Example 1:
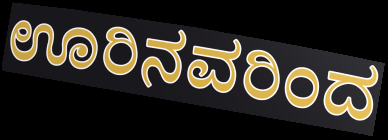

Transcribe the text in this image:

ಊರಿನವರಿಂದ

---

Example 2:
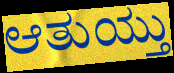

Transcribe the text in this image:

ಆತುಯ್ತು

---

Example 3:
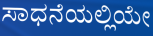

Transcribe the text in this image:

ಸಾಧನೆಯಲ್ಲಿಯೇ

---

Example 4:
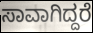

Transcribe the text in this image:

ಸಾವಾಗಿದ್ದರೆ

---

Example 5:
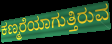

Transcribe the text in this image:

ಕಣ್ಮರೆಯಾಗುತ್ತಿರುವ